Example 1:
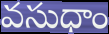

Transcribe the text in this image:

వసుధాం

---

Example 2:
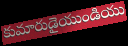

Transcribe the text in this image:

కుమారుడైయుండియు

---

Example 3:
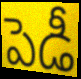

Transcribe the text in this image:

పెడీ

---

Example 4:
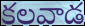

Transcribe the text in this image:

కలవాడ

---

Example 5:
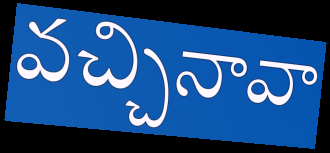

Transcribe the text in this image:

వచ్చినావా